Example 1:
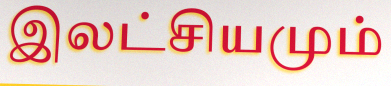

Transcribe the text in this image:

இலட்சியமும்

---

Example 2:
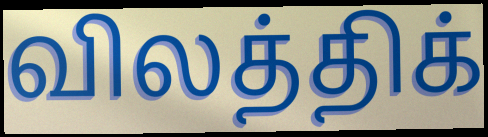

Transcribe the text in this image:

விலத்திக்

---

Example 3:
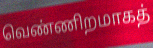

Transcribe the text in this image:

வெண்ணிறமாகத்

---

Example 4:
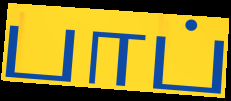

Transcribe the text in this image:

பாப்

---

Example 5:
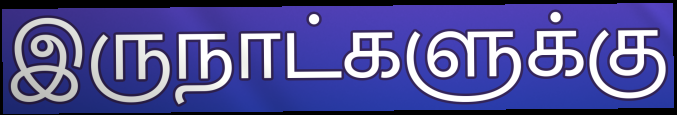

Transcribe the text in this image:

இருநாட்களுக்கு